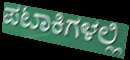
ಪಟಾಕಿಗಳಲ್ಲಿ